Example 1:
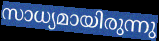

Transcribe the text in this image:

സാധ്യമായിരുന്നു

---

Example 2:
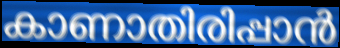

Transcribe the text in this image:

കാണാതിരിപ്പാൻ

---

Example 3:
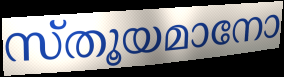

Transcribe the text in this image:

സ്തൂയമാനോ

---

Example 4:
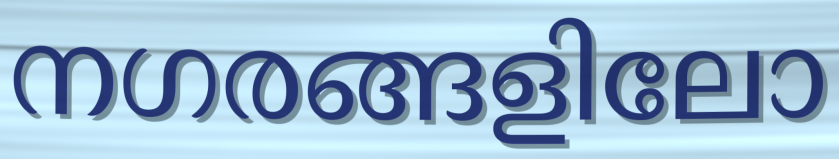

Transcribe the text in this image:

നഗരങ്ങളിലോ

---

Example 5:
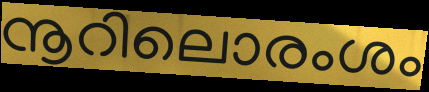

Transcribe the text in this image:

നൂറിലൊരംശം